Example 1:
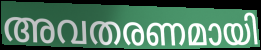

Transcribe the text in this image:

അവതരണമായി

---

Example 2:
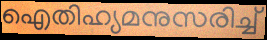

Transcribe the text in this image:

ഐതിഹ്യമനുസരിച്ച്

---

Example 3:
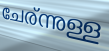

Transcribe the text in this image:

ചേര്ന്നുള്ള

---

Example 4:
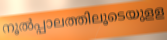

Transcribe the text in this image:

നൂൽപ്പാലത്തിലൂടെയുളള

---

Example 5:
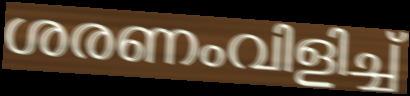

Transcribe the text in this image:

ശരണംവിളിച്ച്